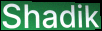
Shadik